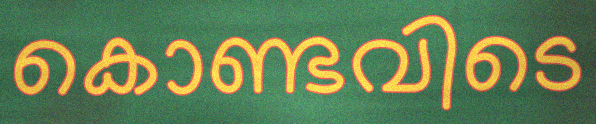
കൊണ്ടവിടെ